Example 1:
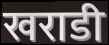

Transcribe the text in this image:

खराडी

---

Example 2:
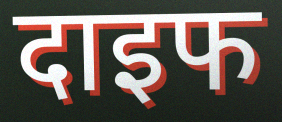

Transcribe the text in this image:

दाइफ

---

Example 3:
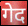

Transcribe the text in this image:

गेद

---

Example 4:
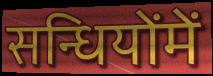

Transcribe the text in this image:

सन्धियोंमें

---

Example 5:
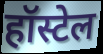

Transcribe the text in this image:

हॉस्टेल